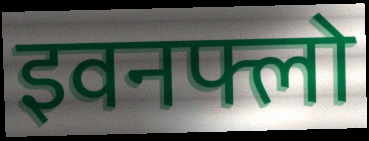
इवनफ्लो